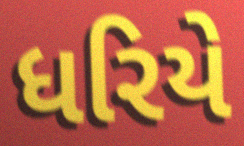
ધરિયે